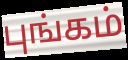
புங்கம்